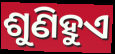
ଶୁଣିହୁଏ